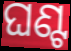
ଘଣ୍ଟ